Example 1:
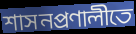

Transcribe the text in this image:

শাসনপ্রণালীতে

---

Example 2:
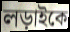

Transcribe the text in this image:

লড়াইকে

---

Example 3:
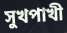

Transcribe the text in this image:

সুখপাখী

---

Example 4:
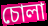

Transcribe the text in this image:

চোলা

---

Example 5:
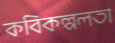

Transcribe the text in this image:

কবিকল্পলতা